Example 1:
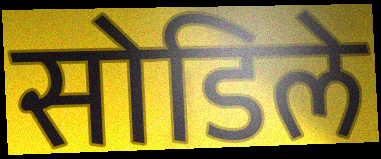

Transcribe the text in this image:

सोडिले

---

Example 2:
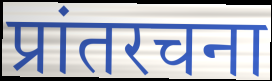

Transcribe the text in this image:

प्रांतरचना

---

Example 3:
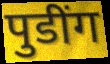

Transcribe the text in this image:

पुडींग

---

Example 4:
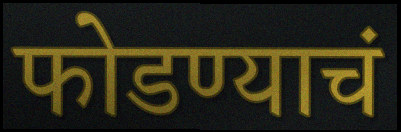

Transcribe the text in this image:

फोडण्याचं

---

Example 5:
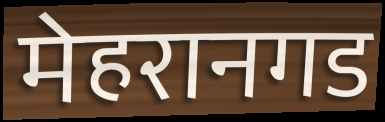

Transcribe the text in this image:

मेहरानगड